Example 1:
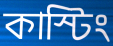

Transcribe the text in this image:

কাস্টিং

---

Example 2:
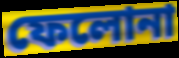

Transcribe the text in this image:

ফেলোনা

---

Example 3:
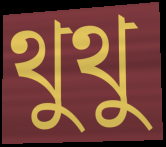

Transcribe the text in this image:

থুথু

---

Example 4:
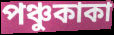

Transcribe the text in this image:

পঞ্চুকাকা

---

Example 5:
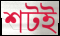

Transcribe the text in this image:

শটই